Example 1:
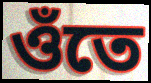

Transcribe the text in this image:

ওঁতে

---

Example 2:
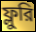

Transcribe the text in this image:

ফ্লুরি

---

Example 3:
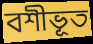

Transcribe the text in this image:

বশীভূত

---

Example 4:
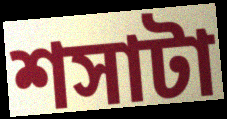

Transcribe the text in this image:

শসাটা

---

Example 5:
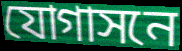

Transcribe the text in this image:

যোগাসনে